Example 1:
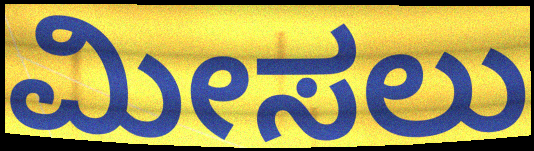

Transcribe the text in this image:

ಮೀಸಲು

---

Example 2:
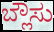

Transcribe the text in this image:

ಬ್ಲೌಸು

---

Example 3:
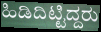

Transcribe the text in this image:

ಹಿಡಿದಿಟ್ಟಿದ್ದರು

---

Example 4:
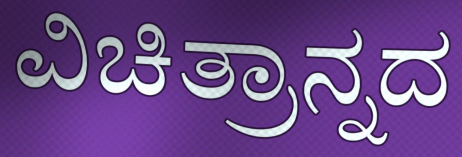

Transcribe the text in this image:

ವಿಚಿತ್ರಾನ್ನದ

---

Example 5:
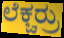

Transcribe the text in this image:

ಲೆಕ್ಚರ್ರು